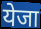
येजा